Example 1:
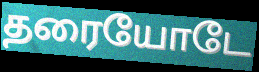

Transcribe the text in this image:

தரையோடே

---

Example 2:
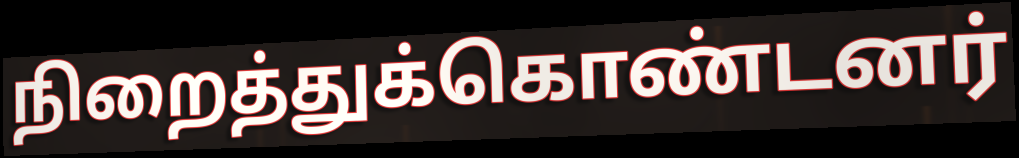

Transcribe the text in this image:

நிறைத்துக்கொண்டனர்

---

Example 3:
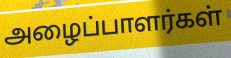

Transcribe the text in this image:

அழைப்பாளர்கள்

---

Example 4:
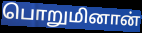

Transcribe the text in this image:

பொறுமினான்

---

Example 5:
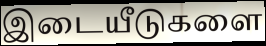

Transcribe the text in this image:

இடையீடுகளை